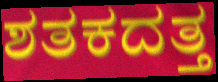
ಶತಕದತ್ತ